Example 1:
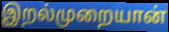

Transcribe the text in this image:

இறல்முறையான்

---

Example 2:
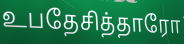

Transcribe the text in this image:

உபதேசித்தாரோ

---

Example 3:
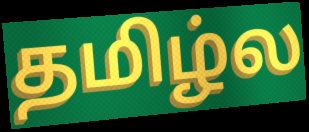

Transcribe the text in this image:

தமிழ்ல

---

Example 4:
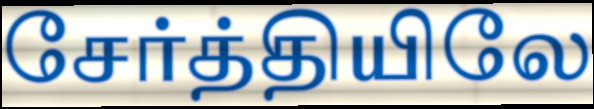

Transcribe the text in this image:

சேர்த்தியிலே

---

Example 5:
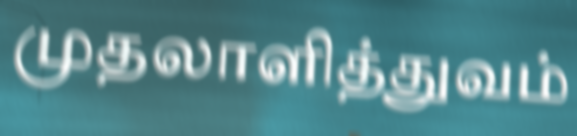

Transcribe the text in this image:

முதலாளித்துவம்